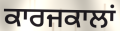
ਕਾਰਜਕਾਲਾਂ